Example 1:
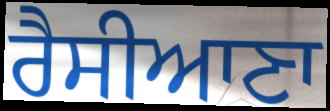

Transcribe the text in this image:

ਰੈਸੀਆਣਾ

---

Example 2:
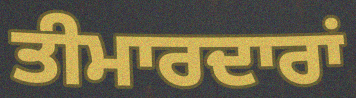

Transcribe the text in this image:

ਤੀਮਾਰਦਾਰਾਂ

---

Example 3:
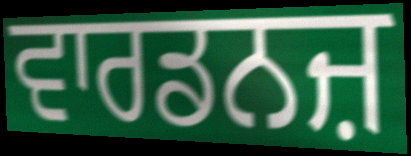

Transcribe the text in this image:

ਵਾਰਡਨਜ਼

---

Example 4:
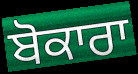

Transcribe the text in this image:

ਬੋਕਾਰਾ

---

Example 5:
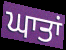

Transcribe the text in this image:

ਘਾਤਾਂ